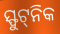
ସ୍ଫୁଟ୍‌ନିକ